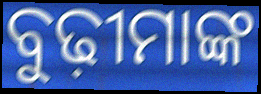
ବୁଢ଼ୀମାଙ୍କ